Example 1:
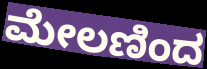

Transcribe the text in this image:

ಮೇಲಣಿಂದ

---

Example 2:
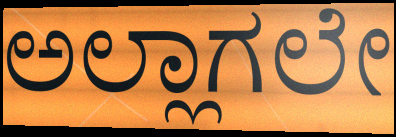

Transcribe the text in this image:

ಅಲ್ಲಾಗಲೇ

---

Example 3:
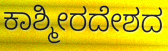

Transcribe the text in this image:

ಕಾಶ್ಮೀರದೇಶದ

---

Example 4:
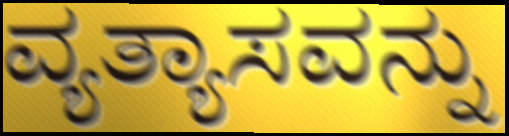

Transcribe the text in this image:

ವ್ಯತ್ಯಾಸವನ್ನು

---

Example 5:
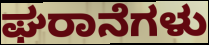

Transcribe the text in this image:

ಘರಾನೆಗಳು